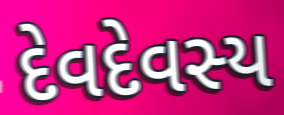
દેવદેવસ્ય